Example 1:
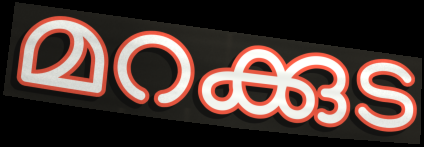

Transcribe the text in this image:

മറക്കുട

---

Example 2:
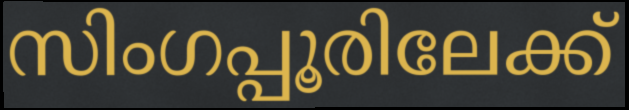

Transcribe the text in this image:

സിംഗപ്പൂരിലേക്ക്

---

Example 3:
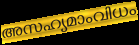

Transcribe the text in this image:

അസഹ്യമാംവിധം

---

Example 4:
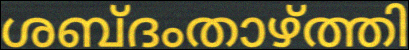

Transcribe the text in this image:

ശബ്ദംതാഴ്ത്തി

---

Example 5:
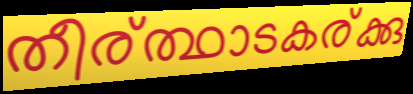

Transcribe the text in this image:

തീര്ത്ഥാടകര്ക്കു